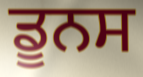
ਡੂਨਸ